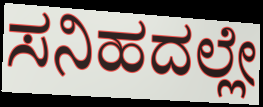
ಸನಿಹದಲ್ಲೇ